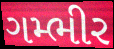
ગમ્ભીર